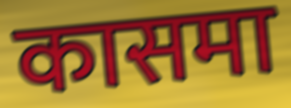
कासमा